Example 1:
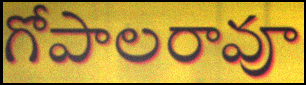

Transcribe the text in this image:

గోపాలరావూ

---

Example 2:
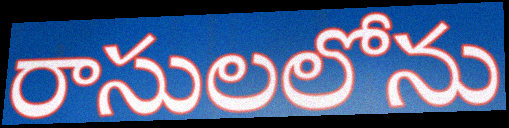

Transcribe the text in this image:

రాసులలోను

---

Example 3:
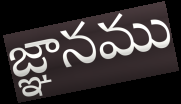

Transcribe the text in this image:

జ్ఞానము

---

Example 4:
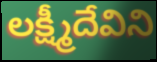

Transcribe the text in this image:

లక్ష్మీదేవిని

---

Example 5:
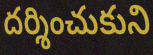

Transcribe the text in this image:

దర్శించుకుని